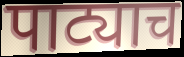
पाट्याच